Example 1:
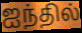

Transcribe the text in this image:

ஐந்தில்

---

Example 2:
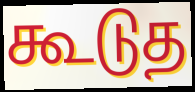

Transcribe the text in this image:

கூடுத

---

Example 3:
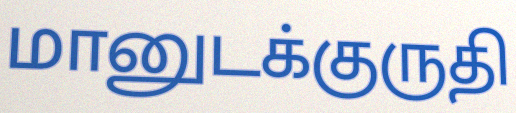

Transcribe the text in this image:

மானுடக்குருதி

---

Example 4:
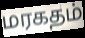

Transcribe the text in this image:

மரகதம்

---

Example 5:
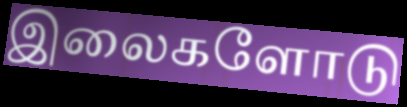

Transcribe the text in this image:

இலைகளோடு